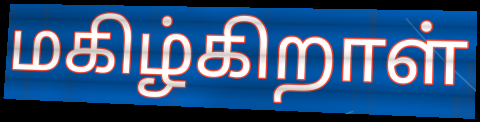
மகிழ்கிறாள்